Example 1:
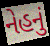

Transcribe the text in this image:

નેહનું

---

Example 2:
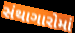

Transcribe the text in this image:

સંથાગારોમાં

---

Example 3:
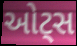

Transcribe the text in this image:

ઓટ્સ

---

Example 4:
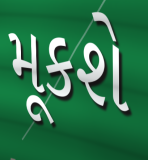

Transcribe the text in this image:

મૂકશે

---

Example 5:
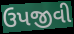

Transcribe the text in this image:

ઉપજીવી